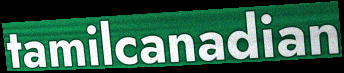
tamilcanadian